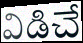
విడిచే